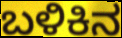
ಬಳಿಕಿನ